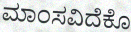
ಮಾಂಸವಿದೆಕೊ